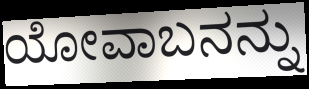
ಯೋವಾಬನನ್ನು